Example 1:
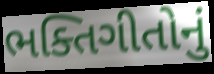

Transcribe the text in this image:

ભક્તિગીતોનું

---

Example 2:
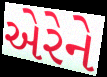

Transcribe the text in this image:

એરેને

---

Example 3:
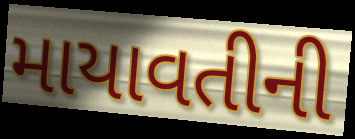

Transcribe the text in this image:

માયાવતીની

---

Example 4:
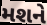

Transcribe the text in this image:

મશને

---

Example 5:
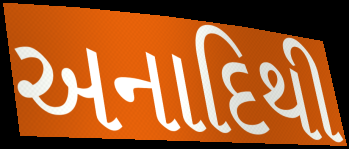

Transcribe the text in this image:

અનાદિથી